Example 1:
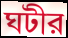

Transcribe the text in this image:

ঘটীর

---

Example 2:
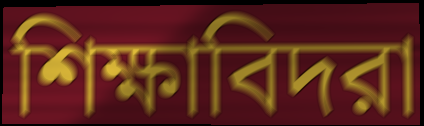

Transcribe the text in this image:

শিক্ষাবিদরা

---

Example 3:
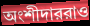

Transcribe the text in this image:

অংশীদাররাও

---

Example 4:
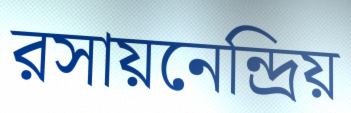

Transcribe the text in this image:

রসায়নেন্দ্রিয়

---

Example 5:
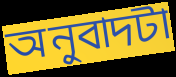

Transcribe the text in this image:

অনুবাদটা